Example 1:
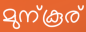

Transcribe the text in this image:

മുന്കൂര്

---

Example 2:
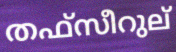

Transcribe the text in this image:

തഫ്സീറുല്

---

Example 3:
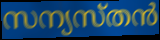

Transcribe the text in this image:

സന്യസ്തൻ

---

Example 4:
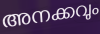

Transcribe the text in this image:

അനക്കവും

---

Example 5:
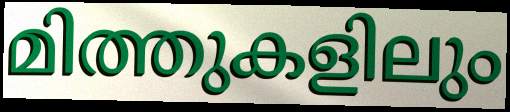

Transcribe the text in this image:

മിത്തുകളിലും